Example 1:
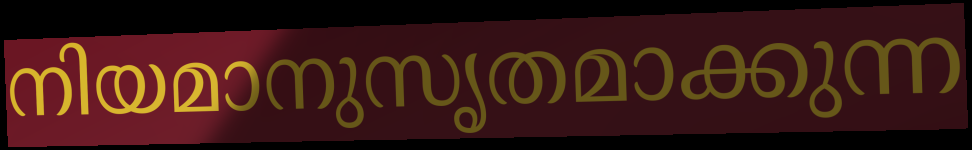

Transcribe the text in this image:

നിയമാനുസൃതമാക്കുന്ന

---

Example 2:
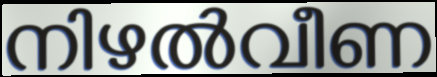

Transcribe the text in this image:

നിഴൽവീണ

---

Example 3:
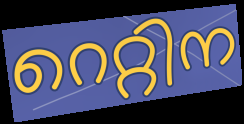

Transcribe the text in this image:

റെറ്റിന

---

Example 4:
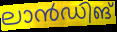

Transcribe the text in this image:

ലാൻഡിങ്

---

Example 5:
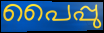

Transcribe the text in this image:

പൈപ്പു